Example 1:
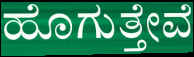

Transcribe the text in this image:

ಹೊಗುತ್ತೇವೆ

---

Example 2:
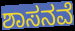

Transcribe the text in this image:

ಶಾಸನವೆ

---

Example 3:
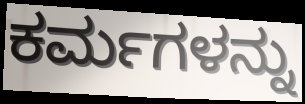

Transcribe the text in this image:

ಕರ್ಮಗಳನ್ನು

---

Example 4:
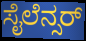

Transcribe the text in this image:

ಸೈಲೆನ್ಸರ್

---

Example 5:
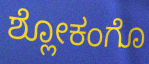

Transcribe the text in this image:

ಶ್ಲೋಕಂಗೊ